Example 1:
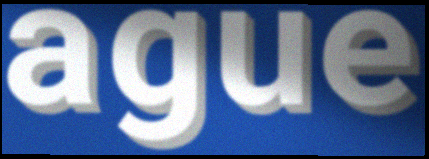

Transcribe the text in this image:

ague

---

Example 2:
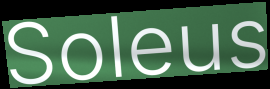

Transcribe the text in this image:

Soleus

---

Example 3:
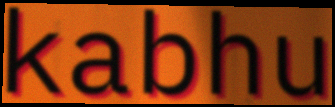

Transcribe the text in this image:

kabhu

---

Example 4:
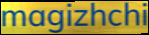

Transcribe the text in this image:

magizhchi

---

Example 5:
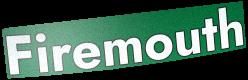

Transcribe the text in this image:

Firemouth